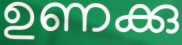
ഉണക്കു